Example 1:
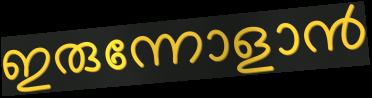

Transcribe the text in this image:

ഇരുന്നോളാൻ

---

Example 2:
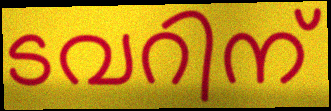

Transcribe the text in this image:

ടവറിന്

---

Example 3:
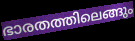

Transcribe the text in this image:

ഭാരതത്തിലെങ്ങും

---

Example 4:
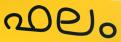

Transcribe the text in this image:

ഫലം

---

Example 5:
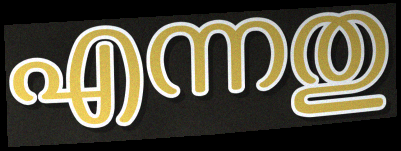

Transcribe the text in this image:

എന്നതു